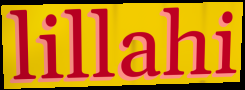
lillahi